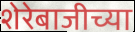
शेरेबाजीच्या